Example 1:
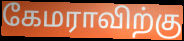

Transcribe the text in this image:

கேமராவிற்கு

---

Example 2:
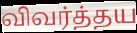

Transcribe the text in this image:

விவர்த்தய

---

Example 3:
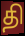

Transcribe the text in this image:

தி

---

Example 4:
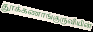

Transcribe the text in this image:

தூக்கணாங்குருவியின்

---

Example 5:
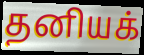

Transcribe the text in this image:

தனியக்